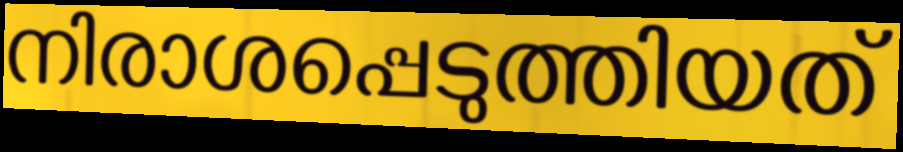
നിരാശപ്പെടുത്തിയത്